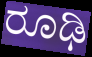
ರೂಢಿ